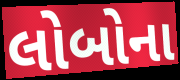
લોબોના